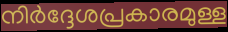
നിർദ്ദേശപ്രകാരമുള്ള